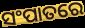
ସଂପାତରେ